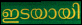
ഇടയായി